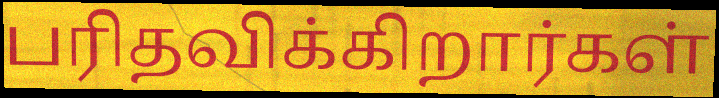
பரிதவிக்கிறார்கள்